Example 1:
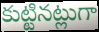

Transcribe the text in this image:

కుట్టినట్లుగా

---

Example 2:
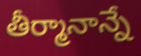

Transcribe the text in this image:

తీర్మానాన్నే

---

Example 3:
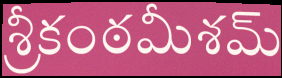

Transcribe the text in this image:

శ్రీకంఠమీశమ్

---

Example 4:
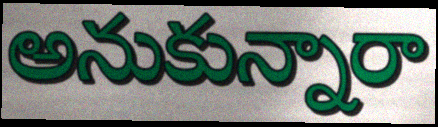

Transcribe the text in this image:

అనుకున్నారా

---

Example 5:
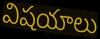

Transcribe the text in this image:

విషయాలు